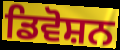
ਡਿਵੋਸ਼ਨ